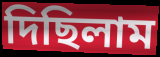
দিছিলাম